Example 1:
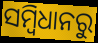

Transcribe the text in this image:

ସମ୍ବିଧାନରୁ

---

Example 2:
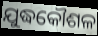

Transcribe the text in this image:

ଯୁଦ୍ଧକୌଶଳ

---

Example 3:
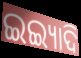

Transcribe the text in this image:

ଇଇ୍ୟାଦି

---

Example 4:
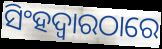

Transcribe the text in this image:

ସିଂହଦ୍ୱାରଠାରେ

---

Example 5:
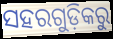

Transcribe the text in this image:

ସହରଗୁଡ଼ିକରୁ